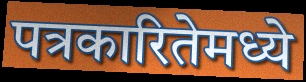
पत्रकारितेमध्ये